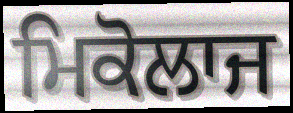
ਮਿਕੋਲਾਜ